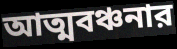
আত্মবঞ্চনার